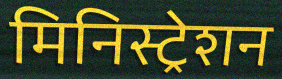
मिनिस्ट्रेशन